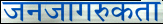
जनजागरुकता